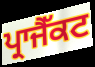
ਪ੍ਰਾਜੈੱਕਟ